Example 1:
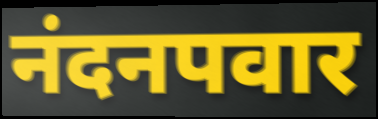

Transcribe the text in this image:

नंदनपवार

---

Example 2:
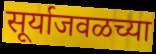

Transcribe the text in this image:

सूर्याजवळच्या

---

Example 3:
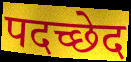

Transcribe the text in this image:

पदच्छेद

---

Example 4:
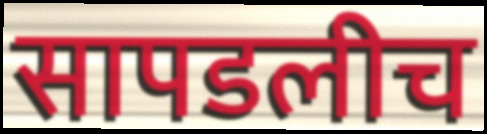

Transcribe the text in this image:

सापडलीच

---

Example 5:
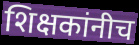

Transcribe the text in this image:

शिक्षकांनीच